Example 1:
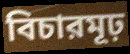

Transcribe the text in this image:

বিচারমূঢ়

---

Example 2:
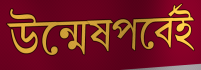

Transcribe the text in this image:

উন্মেষপর্বেই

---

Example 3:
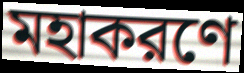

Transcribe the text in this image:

মহাকরণে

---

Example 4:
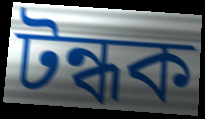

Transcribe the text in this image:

টন্ধক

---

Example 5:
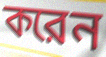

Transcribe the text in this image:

করেন